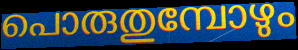
പൊരുതുമ്പോഴും